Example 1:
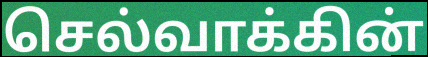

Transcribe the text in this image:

செல்வாக்கின்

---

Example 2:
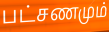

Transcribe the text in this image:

பட்சணமும்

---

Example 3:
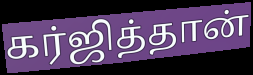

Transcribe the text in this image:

கர்ஜித்தான்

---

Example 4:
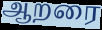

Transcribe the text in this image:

ஆறரை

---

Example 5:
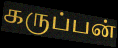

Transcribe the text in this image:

கருப்பன்